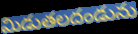
మిడుతలదండును